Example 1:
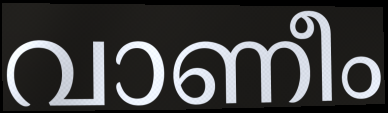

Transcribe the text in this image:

വാണീം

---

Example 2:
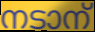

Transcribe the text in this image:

നടാന്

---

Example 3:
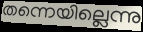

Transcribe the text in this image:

തന്നെയില്ലെന്നു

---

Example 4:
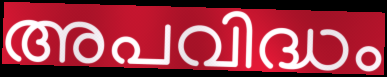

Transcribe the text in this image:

അപവിദ്ധം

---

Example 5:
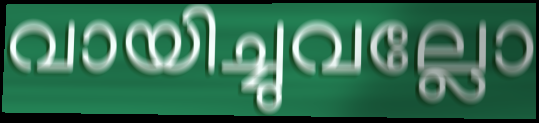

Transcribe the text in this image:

വായിച്ചുവല്ലോ